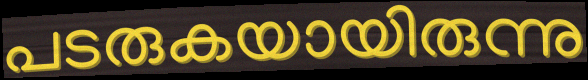
പടരുകയായിരുന്നു